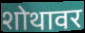
शोथावर